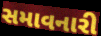
સમાવનારી